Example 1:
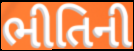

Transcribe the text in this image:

ભીતિની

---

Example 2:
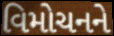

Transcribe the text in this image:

વિમોચનને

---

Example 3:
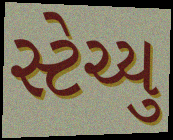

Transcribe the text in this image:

સ્ટેચ્યુ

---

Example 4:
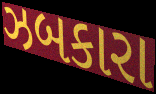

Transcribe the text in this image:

ઝબકારા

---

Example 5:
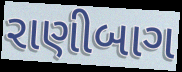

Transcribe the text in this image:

રાણીબાગ